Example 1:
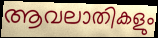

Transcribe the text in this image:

ആവലാതികളും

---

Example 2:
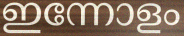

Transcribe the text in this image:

ഇന്നോളം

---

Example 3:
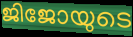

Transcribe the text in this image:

ജിജോയുടെ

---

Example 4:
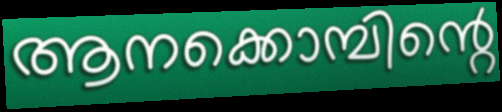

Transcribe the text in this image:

ആനക്കൊമ്പിന്റെ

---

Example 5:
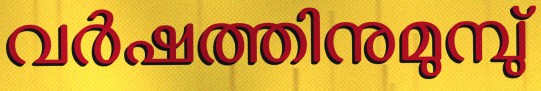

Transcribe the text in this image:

വർഷത്തിനുമുമ്പു്